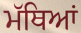
ਮੱਥਿਆਂ